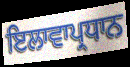
ਇਲਾਵਾਪ੍ਰਧਾਨ